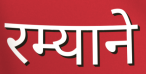
रम्याने